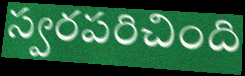
స్వరపరిచింది